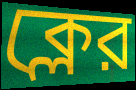
ক্লের